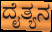
ದೈತ್ಯನ